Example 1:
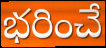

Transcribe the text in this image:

భరించే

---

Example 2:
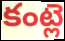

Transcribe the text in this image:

కంట్లె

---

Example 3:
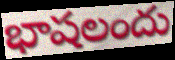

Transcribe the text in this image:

భాషలందు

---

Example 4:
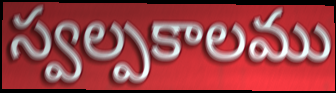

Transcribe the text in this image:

స్వల్పకాలము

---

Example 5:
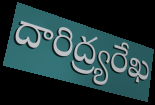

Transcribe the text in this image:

దారిద్ర్యరేఖ